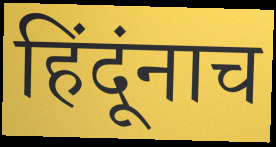
हिंदूंनाच